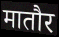
मातौर